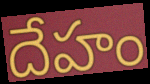
దేహం